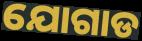
ଯୋଗାଡ